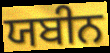
ਯਬੀਨ